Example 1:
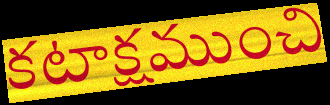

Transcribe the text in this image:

కటాక్షముంచి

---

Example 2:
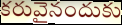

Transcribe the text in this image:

కరువైనందుకు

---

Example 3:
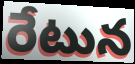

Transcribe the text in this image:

రేటున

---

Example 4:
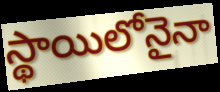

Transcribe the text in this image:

స్థాయిలోనైనా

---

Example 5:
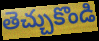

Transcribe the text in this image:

తెచ్చుకొండి